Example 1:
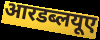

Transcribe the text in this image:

आरडब्लयूए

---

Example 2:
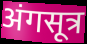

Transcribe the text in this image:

अंगसूत्र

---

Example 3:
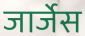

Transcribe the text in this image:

जार्जेस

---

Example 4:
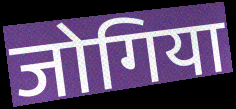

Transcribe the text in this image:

जोगिया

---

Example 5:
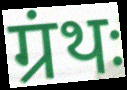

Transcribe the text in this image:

ग्रंथः